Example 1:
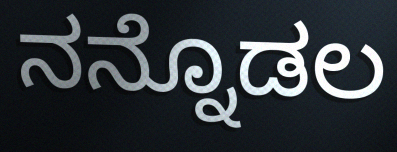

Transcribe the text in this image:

ನನ್ನೊಡಲ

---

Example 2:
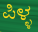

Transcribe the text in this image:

ಪಿಳ್ಳ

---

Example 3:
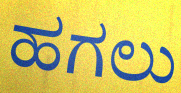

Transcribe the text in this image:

ಹಗಲು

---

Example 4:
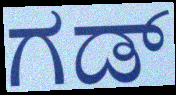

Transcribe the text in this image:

ಗಡ್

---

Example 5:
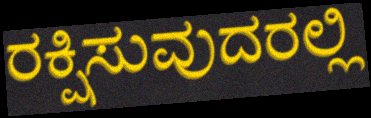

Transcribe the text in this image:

ರಕ್ಷಿಸುವುದರಲ್ಲಿ